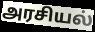
அரசியல்